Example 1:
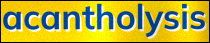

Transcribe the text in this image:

acantholysis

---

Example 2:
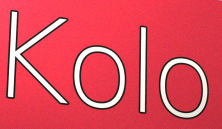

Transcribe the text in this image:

Kolo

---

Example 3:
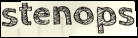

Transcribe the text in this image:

stenops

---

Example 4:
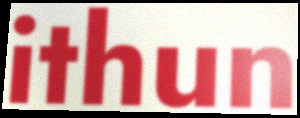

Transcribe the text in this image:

ithun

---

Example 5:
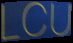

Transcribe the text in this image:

LCU